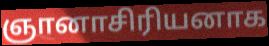
ஞானாசிரியனாக